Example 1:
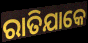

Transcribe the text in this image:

ରାତିଯାକେ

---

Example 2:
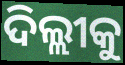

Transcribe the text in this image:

ଦିଲ୍ଲୀକୁ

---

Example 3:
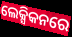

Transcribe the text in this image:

ଲେକ୍ସିକନରେ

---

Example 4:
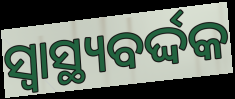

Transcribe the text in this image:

ସ୍ଵାସ୍ଥ୍ୟବର୍ଦ୍ଦକ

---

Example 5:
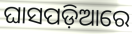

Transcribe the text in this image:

ଘାସପଡ଼ିଆରେ